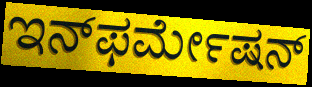
ಇನ್‌ಫರ್ಮೇಷನ್